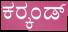
ಕರ್‍ಕಂಡ್